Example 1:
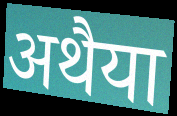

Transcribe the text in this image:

अथैया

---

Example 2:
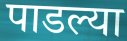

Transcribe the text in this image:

पाडल्या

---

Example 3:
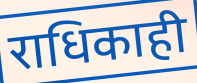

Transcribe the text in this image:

राधिकाही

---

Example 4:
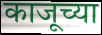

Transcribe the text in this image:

काजूच्या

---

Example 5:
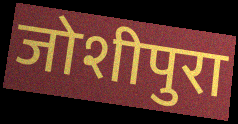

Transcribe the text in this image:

जोशीपुरा